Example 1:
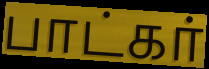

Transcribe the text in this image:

பாட்கர்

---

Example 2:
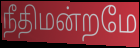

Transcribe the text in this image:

நீதிமன்றமே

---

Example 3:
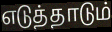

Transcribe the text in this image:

எடுத்தாடும்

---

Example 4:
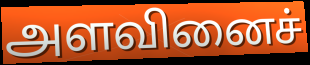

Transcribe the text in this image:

அளவினைச்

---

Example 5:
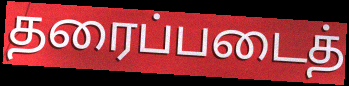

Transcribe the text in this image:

தரைப்படைத்